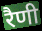
रैणी